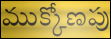
ముక్కోణపు